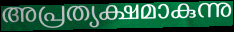
അപ്രത്യക്ഷമാകുന്നു